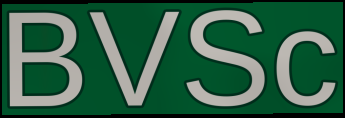
BVSc